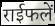
राईफलें